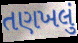
તણખલું